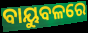
ବାୟୁବଳରେ